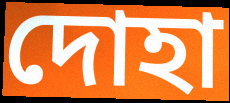
দোহা